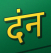
दंन